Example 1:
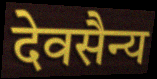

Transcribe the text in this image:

देवसैन्य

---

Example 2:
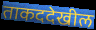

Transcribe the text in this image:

ताकददेखील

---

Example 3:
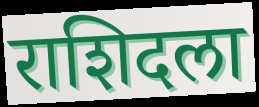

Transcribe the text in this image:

राशिदला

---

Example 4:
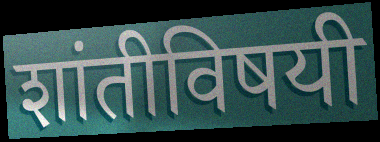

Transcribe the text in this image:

शांतीविषयी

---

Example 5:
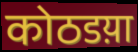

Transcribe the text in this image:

कोठडय़ा